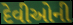
દેવીઓની